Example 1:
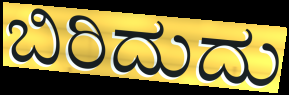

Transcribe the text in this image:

ಬಿರಿದುದು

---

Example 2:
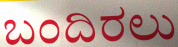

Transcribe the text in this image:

ಬಂದಿರಲು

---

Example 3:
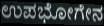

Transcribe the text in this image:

ಉಪಭೋಗೇನ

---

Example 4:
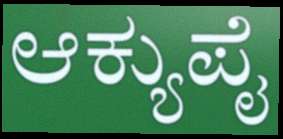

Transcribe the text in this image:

ಆಕ್ಯುಪೈ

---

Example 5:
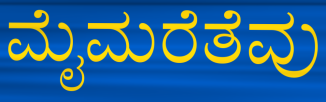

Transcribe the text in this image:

ಮೈಮರೆತೆವು